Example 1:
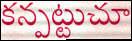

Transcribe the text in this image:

కన్పట్టుచూ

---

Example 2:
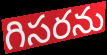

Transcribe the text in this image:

గిసరను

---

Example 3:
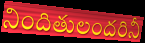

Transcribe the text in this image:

నిందితులందరినీ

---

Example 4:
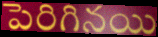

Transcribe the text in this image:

పెరిగినయి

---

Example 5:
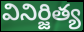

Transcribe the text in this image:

వినిర్జిత్య